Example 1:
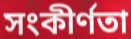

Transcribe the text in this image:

সংকীর্ণতা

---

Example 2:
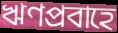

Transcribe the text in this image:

ঋণপ্রবাহে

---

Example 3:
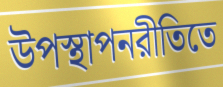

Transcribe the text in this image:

উপস্থাপনরীতিতে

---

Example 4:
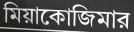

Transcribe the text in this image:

মিয়াকোজিমার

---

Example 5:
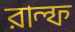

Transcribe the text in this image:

রাল্ফ